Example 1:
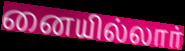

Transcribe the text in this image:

னையில்லார்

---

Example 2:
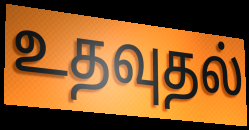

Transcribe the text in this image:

உதவுதல்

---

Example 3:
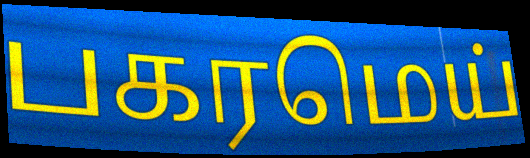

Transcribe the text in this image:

பகரமெய்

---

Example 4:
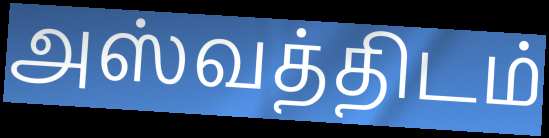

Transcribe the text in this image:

அஸ்வத்திடம்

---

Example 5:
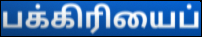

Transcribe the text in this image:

பக்கிரியைப்